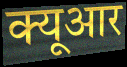
क्‍यूआर